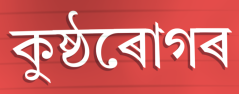
কুষ্ঠৰোগৰ